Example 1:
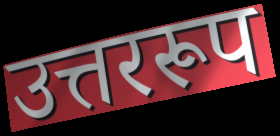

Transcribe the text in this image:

उत्तररूप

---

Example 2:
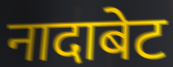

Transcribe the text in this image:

नादाबेट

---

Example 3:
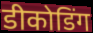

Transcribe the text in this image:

डीकोडिंग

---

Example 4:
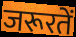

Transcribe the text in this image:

जरूरतें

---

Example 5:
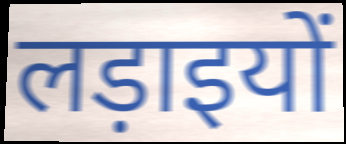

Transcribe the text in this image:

लड़ाइयों